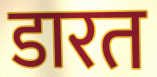
डारत